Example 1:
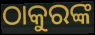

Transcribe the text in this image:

ଠାକୁରଙ୍କ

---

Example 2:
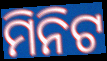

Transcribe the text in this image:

ମିନିଟ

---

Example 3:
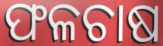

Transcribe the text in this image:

ଫଳଚାଷ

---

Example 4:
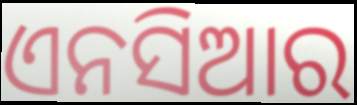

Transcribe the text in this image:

ଏନସିଆର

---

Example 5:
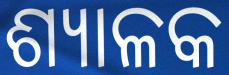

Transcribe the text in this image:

ଶ୍ୟାଳକ